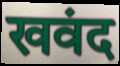
खवंद